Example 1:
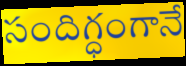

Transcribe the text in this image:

సందిగ్ధంగానే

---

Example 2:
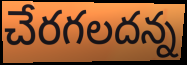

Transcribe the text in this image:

చేరగలదన్న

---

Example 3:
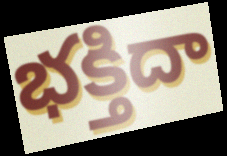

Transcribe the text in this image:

భక్తిదా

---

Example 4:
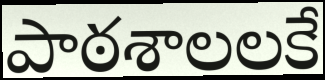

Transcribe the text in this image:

పాఠశాలలకే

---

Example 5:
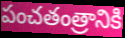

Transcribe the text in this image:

పంచతంత్రానికి